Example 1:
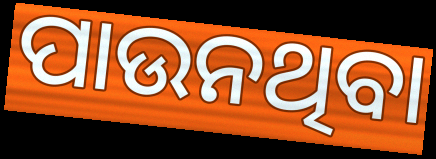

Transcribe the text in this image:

ପାଉନଥିବା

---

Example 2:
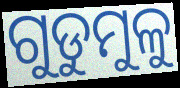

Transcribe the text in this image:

ଗୁଡୁମୁଳୁ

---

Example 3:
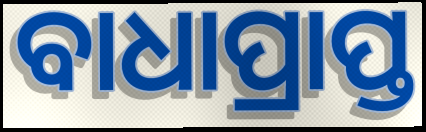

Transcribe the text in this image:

ବାଧାପ୍ରାପ୍ତ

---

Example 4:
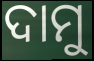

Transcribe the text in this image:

ଦାମୁ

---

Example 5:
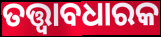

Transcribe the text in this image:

ତତ୍ତ୍ୱାବଧାରକ